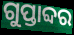
ଗୁପ୍ତାବ୍ଦର